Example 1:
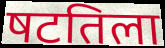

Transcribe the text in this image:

षटतिला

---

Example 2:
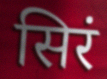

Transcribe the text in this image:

सिरं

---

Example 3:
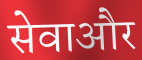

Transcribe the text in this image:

सेवाऔर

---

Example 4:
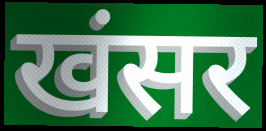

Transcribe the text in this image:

खंसर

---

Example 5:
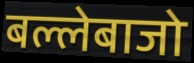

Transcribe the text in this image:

बल्लेबाजो